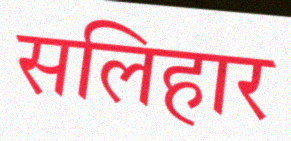
सलिहार